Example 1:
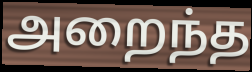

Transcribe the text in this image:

அறைந்த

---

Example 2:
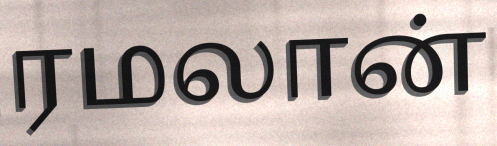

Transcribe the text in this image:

ரமலான்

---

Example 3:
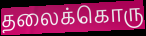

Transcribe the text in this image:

தலைக்கொரு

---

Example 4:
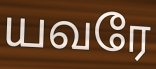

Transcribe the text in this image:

யவரே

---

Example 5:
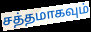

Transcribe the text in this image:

சத்தமாகவும்